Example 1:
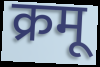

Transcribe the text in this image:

क्रमू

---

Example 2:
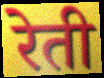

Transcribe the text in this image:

रेती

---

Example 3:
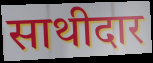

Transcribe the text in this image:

साथीदार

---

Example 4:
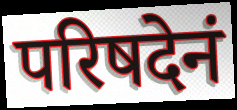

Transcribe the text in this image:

परिषदेनं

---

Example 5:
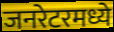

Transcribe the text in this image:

जनरेटरमध्ये